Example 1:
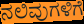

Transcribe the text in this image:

ನಲಿವುಗಳಿಗೆ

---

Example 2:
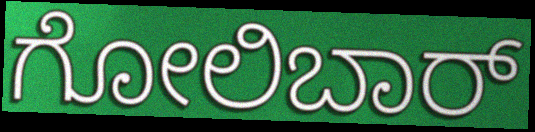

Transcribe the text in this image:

ಗೋಲಿಬಾರ್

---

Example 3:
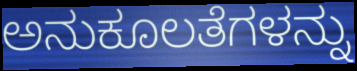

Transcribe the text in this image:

ಅನುಕೂಲತೆಗಳನ್ನು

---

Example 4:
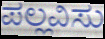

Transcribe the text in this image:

ಪಲ್ಲವಿಸು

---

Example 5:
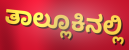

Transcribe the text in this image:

ತಾಲ್ಲೂಕಿನಲ್ಲಿ